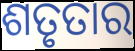
ଶତୃତାର